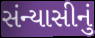
સંન્યાસીનું